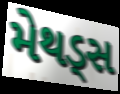
મેથડ્સ